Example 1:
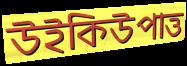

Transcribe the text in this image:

উইকিউপাত্ত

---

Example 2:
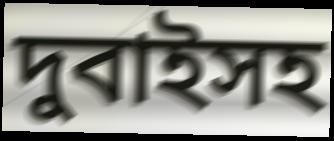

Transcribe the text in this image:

দুবাইসহ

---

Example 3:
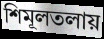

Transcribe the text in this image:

শিমূলতলায়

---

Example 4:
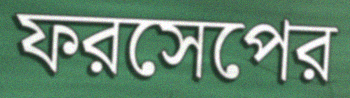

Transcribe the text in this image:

ফরসেপের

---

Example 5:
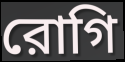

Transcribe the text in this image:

রোগি